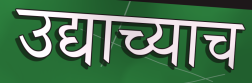
उद्याच्याच